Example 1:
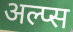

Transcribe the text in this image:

अल्प्स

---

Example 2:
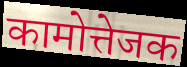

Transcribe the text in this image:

कामोत्तेजक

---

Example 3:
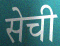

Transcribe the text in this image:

सेची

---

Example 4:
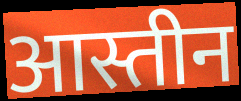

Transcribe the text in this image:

आस्तीन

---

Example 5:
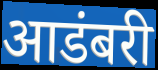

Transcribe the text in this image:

आडंबरी